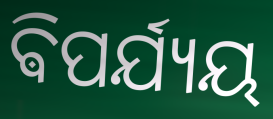
ଵିପର୍ଯ୍ୟୟ